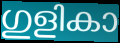
ഗുളികാ